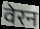
वेरन